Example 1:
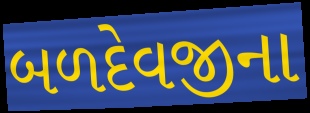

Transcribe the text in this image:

બળદેવજીના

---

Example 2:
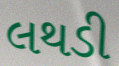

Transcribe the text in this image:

લથડી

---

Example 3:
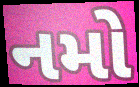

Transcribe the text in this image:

નમો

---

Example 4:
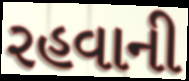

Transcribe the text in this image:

રહવાની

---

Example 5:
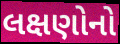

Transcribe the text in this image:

લક્ષણોનો